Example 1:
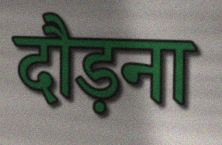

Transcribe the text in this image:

दौड़ना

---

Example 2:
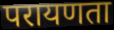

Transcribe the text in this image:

परायणता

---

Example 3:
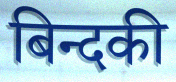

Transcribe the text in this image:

बिन्दकी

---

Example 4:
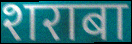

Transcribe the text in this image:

शराबा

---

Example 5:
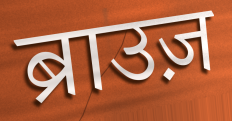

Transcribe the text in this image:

ब्राउज़